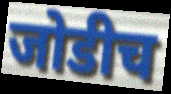
जोडीच